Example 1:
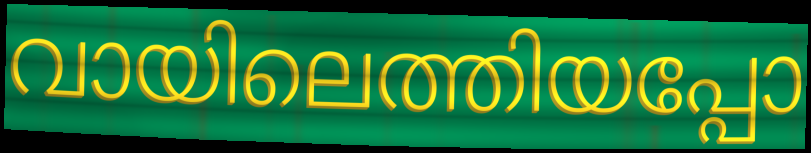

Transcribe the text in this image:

വായിലെത്തിയപ്പോ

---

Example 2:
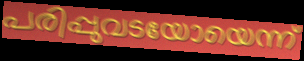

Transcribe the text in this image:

പരിപ്പുവടയോയെന്ന്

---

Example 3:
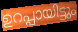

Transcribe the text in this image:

ഉറപ്പായിട്ടും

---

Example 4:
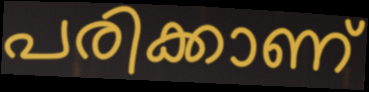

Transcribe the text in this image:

പരിക്കാണ്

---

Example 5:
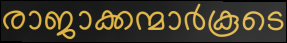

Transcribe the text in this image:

രാജാക്കന്മാർകൂടെ